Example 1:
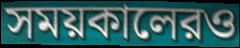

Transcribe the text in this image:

সময়কালেরও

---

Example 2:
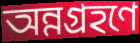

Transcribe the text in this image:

অন্নগ্রহণে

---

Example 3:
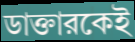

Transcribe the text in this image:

ডাক্তারকেই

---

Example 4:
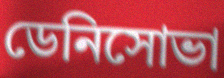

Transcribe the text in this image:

ডেনিসোভা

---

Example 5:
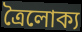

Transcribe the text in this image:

ত্রৈলোক্য